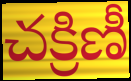
చక్రిణీ